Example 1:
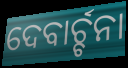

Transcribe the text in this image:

ଦେବାର୍ଚ୍ଚନା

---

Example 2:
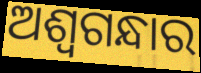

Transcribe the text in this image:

ଅଶ୍ୱଗନ୍ଧାର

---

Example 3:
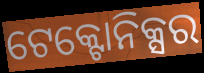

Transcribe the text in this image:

ଟେକ୍ଟୋନିକ୍ସର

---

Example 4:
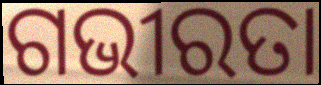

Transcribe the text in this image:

ଗଭୀରତା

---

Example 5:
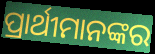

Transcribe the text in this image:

ପ୍ରାର୍ଥୀମାନଙ୍କର